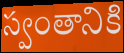
స్వంతానికి